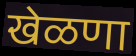
खेळणा